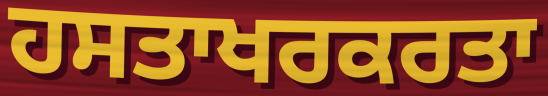
ਹਸਤਾਖਰਕਰਤਾ